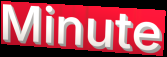
Minute